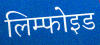
लिम्फोइड